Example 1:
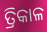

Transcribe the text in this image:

ତ୍ରିକାଳ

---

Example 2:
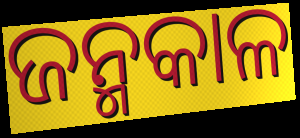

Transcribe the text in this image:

ଜନ୍ମକାଳ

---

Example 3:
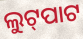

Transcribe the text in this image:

ଲୁଟ୍‍ପାଟ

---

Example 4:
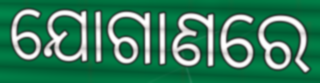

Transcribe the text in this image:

ଯୋଗାଣରେ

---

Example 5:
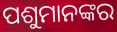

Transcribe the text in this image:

ପଶୁମାନଙ୍କର